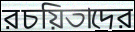
রচয়িতাদের